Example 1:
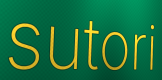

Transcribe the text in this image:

sutori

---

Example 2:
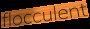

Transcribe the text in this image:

flocculent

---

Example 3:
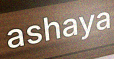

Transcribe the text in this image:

ashaya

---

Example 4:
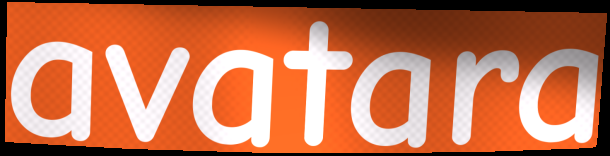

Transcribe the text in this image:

avatara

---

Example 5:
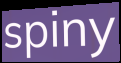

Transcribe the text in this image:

spiny